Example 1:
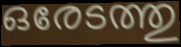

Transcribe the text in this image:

ഒരേടത്തു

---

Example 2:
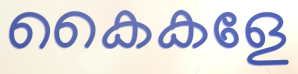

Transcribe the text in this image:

കൈകളേ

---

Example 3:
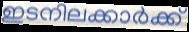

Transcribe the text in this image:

ഇടനിലക്കാർക്ക്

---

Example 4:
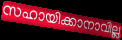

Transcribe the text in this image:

സഹായിക്കാനാവില്ല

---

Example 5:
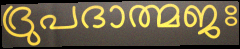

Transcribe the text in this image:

ദ്രുപദാത്മജഃ